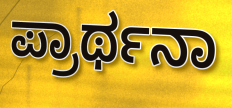
ಪ್ರಾರ್ಥನಾ